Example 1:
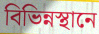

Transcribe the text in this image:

বিভিন্নস্থানে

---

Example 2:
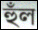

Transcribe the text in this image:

হুঁল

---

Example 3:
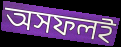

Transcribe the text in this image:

অসফলই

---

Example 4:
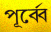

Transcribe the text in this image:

পূর্ব্বে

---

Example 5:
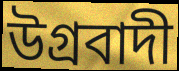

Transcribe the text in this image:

উগ্রবাদী